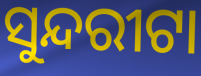
ସୁନ୍ଦରୀଟା